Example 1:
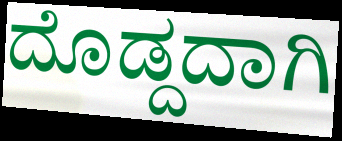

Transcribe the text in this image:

ದೊಡ್ದದಾಗಿ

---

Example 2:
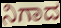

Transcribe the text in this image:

ನಿಗಾದ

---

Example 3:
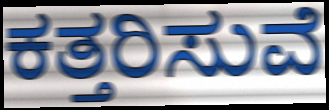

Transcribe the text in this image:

ಕತ್ತರಿಸುವೆ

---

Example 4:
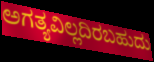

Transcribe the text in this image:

ಅಗತ್ಯವಿಲ್ಲದಿರಬಹುದು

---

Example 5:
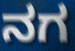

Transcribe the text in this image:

ನಗ